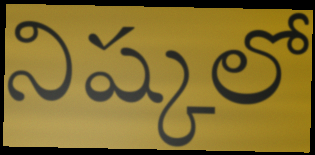
నిష్కలో